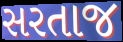
સરતાજ